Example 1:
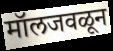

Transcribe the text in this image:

मॉलजवळून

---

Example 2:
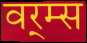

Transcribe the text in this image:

वर्म्स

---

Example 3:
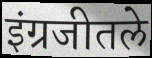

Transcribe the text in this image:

इंग्रजीतले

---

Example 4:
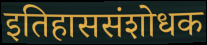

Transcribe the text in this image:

इतिहाससंशोधक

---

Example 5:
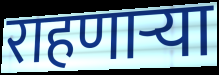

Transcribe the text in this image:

राहणार्‍या